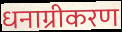
धनाग्रीकरण